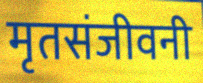
मृतसंजीवनी